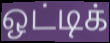
ஒட்டிக்